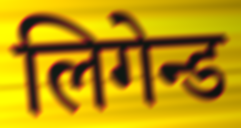
लिगेन्ड